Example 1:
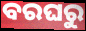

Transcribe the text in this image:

ବରଘରୁ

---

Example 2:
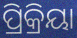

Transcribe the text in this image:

ପ୍ରିକ୍ରିୟା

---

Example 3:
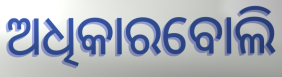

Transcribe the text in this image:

ଅଧିକାରବୋଲି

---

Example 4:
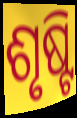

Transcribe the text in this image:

ଶୃଷ୍ଟି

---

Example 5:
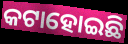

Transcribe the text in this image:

କଟାହୋଇଛି